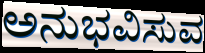
ಅನುಭವಿಸುವ